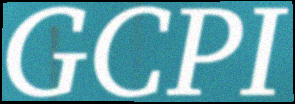
GCPI